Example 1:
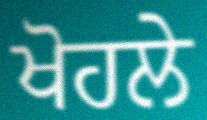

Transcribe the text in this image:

ਖੋਹਲੇ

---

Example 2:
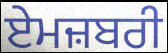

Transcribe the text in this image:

ਏਮਜ਼ਬਰੀ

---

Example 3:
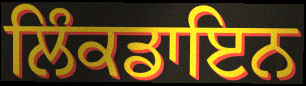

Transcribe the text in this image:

ਲਿੰਕਡਾਇਨ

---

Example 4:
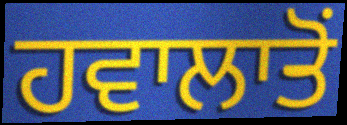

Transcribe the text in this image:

ਹਵਾਲਾਤੋਂ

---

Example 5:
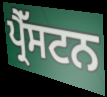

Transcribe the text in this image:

ਪ੍ਰੈੱਸਟਨ